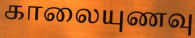
காலையுணவு